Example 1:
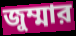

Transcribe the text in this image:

জুম্মার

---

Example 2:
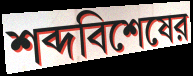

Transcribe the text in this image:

শব্দবিশেষের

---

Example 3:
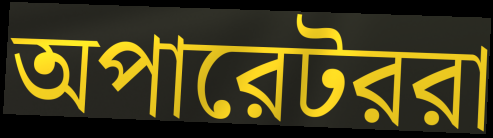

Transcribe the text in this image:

অপারেটররা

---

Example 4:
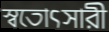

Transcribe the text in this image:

স্বতোৎসারী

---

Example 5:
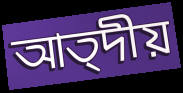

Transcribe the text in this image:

আত্দীয়